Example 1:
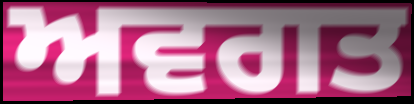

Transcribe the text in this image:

ਅਵਗਤ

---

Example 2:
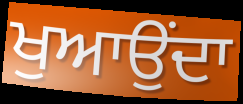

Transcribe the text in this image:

ਖੁਆਉਂਦਾ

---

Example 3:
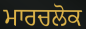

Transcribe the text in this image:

ਮਾਰਚਲੋਕ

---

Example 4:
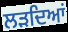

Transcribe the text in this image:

ਲੜਦਿਆਂ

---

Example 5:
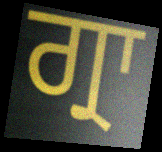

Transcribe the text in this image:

ਗ੍ਰਾ